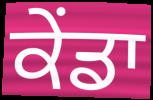
ਕੇਂਡਾ